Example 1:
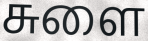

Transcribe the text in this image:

சுளை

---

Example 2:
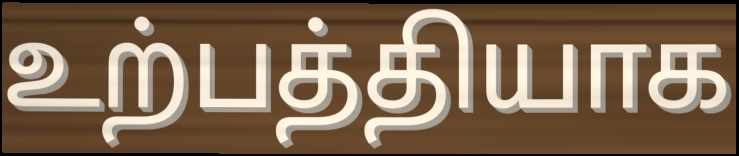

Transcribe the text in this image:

உற்பத்தியாக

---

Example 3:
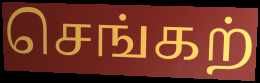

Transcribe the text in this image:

செங்கற்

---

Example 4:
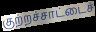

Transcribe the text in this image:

குற்றச்சாட்டைச்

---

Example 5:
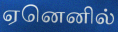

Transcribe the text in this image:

ஏனெனில்